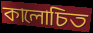
কালোচিত